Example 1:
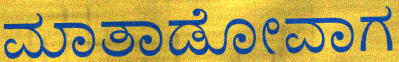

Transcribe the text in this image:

ಮಾತಾಡೋವಾಗ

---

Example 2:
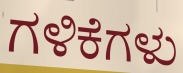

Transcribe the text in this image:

ಗಳಿಕೆಗಳು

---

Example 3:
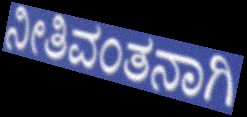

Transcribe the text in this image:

ನೀತಿವಂತನಾಗಿ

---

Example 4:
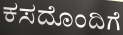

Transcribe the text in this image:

ಕಸದೊಂದಿಗೆ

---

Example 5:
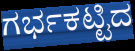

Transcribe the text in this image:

ಗರ್ಭಕಟ್ಟಿದ